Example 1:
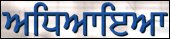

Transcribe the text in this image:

ਅਧਿਆਇਆ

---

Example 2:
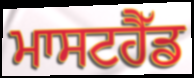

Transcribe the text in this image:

ਮਾਸਟਹੈੱਡ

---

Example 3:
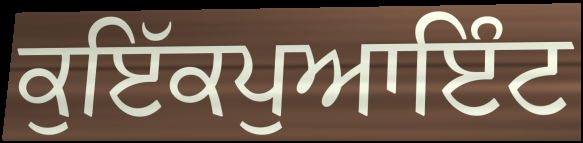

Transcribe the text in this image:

ਕੁਇੱਕਪੁਆਇੰਟ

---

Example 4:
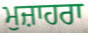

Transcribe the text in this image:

ਮੁਜ਼ਾਹਰਾ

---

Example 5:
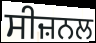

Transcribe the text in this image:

ਸੀਜ਼ਨਲ